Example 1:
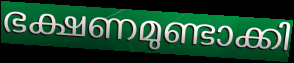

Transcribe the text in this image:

ഭക്ഷണമുണ്ടാക്കി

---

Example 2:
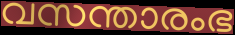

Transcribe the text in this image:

വസന്താരംഭ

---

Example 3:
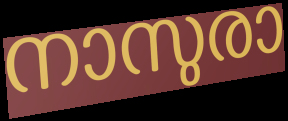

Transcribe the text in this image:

നാസുരാ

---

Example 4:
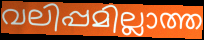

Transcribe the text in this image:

വലിപ്പമില്ലാത്ത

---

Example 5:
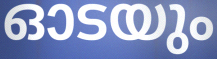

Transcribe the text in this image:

ഓടയും